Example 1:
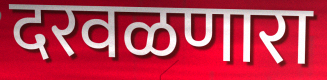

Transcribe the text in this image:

दरवळणारा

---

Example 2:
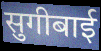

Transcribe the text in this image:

सुगीबाई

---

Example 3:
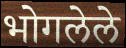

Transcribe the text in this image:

भोगलेले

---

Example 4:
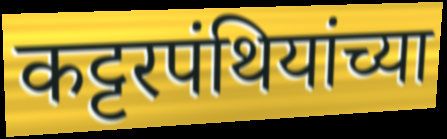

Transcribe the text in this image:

कट्टरपंथियांच्या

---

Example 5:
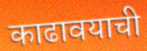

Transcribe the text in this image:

काढावयाची